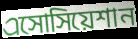
এসোসিয়েশান